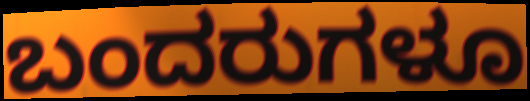
ಬಂದರುಗಳೂ